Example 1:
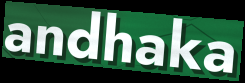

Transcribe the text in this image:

andhaka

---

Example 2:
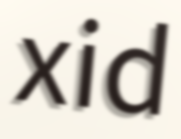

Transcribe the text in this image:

xid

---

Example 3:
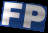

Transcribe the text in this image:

FP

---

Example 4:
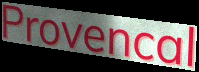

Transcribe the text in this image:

Provencal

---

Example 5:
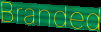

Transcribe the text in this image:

Branded